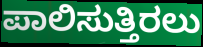
ಪಾಲಿಸುತ್ತಿರಲು